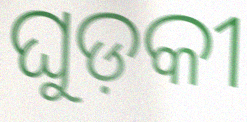
ଘୁଡ଼କୀ